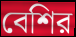
বেশির